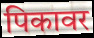
पिकावर